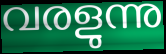
വരളുന്നു